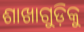
ଶାଖାଗୁଡ଼ିକୁ